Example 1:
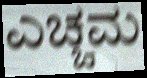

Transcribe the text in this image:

ಎಚ್ಚಮ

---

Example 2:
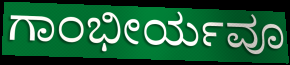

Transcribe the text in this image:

ಗಾಂಭೀರ್ಯವೂ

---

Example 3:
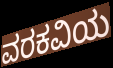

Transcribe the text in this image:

ವರಕವಿಯ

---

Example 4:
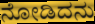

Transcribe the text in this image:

ನೋಡಿದನು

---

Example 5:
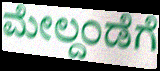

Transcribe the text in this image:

ಮೇಲ್ದಂಡೆಗೆ